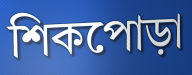
শিকপোড়া